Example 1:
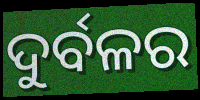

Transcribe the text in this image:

ଦୁର୍ବଳର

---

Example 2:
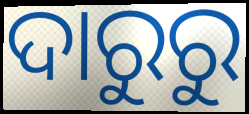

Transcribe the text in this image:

ଦାରୁରୁ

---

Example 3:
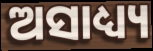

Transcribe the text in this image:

ଅସାଧ୍ୟ୍ୟ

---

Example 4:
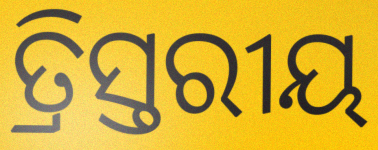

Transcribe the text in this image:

ତ୍ରିସ୍ତରୀୟ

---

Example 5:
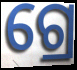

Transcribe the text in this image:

ଗ୍ରେ